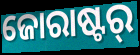
ଜୋରାଷ୍ଟର୍